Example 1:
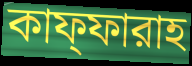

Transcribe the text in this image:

কাফ্ফারাহ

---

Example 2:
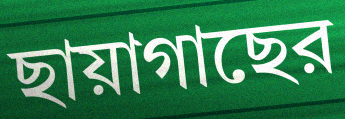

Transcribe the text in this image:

ছায়াগাছের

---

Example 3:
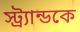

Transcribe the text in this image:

স্ট্র্যান্ডকে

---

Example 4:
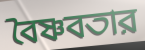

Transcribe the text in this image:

বৈষ্ণবতার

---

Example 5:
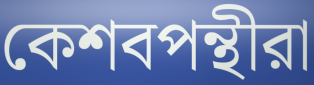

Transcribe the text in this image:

কেশবপন্থীরা